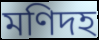
মণিদহ